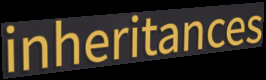
inheritances